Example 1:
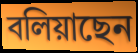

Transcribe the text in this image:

বলিয়াছেন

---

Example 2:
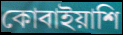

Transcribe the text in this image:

কোবাইয়াশি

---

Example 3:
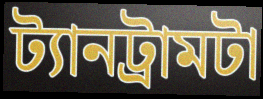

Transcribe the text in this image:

ট্যানট্রামটা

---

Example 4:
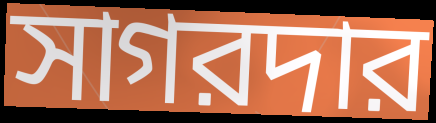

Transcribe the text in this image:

সাগরদার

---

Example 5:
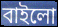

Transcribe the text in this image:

বাইলো